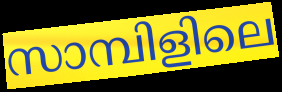
സാമ്പിളിലെ